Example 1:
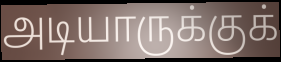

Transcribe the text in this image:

அடியாருக்குக்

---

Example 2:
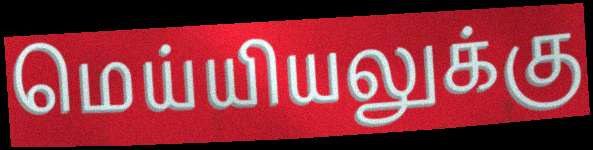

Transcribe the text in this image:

மெய்யியலுக்கு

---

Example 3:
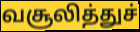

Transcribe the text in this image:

வசூலித்துச்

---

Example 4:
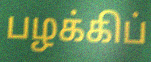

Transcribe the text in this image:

பழக்கிப்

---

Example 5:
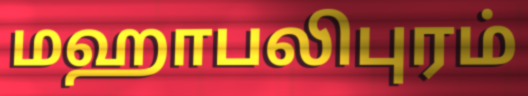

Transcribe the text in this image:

மஹாபலிபுரம்